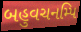
બહુવચનમ્પિ